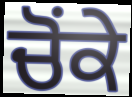
ਚੋਂਕੇ